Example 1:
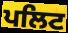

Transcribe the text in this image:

ਪਲਿਟ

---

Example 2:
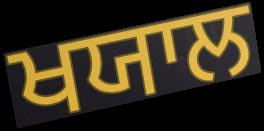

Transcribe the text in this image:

ਖਯਾਲ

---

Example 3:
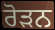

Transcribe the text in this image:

ਰੋੜਨ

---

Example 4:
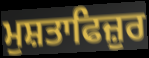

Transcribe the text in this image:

ਮੁਸ਼ਤਾਫਿਜ਼ੁਰ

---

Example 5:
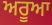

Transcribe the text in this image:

ਅਰੂਆ